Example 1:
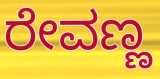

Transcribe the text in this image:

ರೇವಣ್ಣ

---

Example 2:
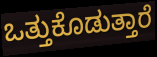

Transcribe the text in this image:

ಒತ್ತುಕೊಡುತ್ತಾರೆ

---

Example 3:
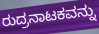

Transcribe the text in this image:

ರುದ್ರನಾಟಕವನ್ನು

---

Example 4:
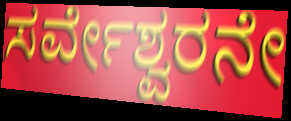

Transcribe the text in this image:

ಸರ್ವೇಶ್ವರನೇ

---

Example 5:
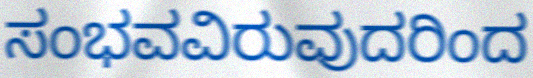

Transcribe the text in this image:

ಸಂಭವವಿರುವುದರಿಂದ